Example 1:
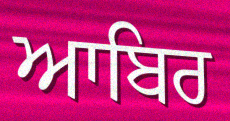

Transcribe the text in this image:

ਆਬਿਰ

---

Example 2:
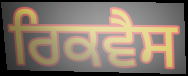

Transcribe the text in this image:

ਰਿਕਵੈਸ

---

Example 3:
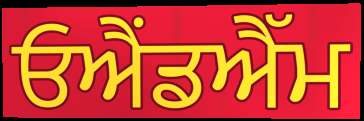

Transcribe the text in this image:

ਓਐਂਡਐੱਮ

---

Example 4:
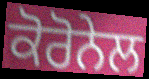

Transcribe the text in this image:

ਕੋਰੋਨੇਲ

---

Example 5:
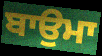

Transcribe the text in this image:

ਬਾਉਮਾ